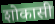
शोकासी